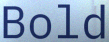
Bold